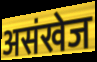
असंखेज